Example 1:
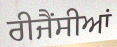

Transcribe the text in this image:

ਰੀਜੈਂਸੀਆਂ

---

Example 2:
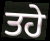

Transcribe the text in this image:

ਤਹੇ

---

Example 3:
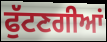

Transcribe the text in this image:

ਫੁੱਟਣਗੀਆਂ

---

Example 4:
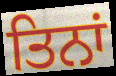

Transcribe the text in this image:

ਤਿਨਾਂ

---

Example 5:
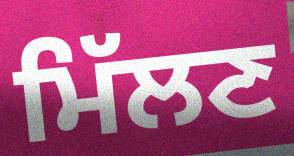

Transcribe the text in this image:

ਮਿੱਲਣ